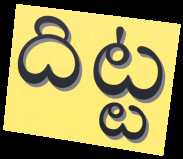
దిట్ట